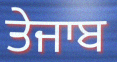
ਤੇਜਾਬ